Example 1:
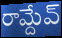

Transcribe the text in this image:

రామ్దేవ్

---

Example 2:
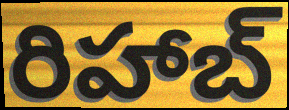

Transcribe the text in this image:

రిహాబ్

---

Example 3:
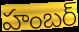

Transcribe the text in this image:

హంబర్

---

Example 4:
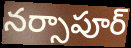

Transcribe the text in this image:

నర్సాపూర్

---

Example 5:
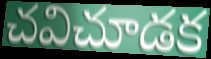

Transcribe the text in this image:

చవిచూడక